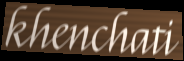
khenchati